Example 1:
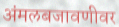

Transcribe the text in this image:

अंमलबजावणीवर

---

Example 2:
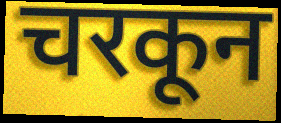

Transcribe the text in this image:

चरकून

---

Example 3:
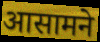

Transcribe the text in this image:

आसामने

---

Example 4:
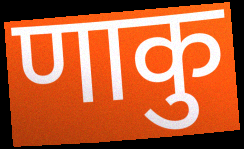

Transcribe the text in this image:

णाकु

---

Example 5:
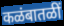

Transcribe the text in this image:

कळंबातळीं